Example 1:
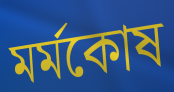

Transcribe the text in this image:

মর্মকোষ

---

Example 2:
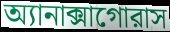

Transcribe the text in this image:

অ্যানাক্সাগোরাস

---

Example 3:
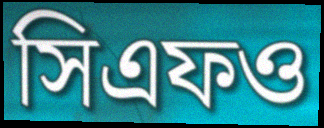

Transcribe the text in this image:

সিএফও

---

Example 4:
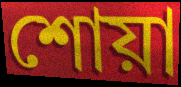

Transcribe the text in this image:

শোয়া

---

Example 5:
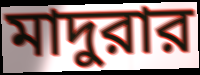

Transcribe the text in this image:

মাদুরার